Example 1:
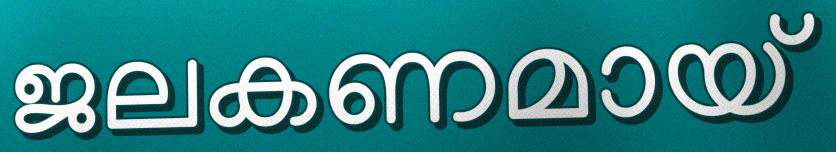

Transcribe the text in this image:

ജലകണമായ്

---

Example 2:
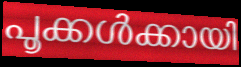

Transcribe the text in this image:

പൂക്കൾക്കായി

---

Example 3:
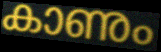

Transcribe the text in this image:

കാണും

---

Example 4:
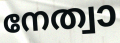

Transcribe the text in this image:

നേത്വാ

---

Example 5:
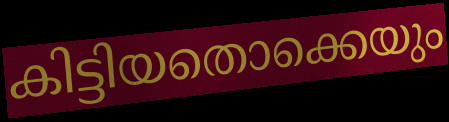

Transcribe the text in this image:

കിട്ടിയതൊക്കെയും